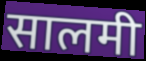
सालमी